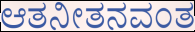
ಆತನೀತನವಂತ